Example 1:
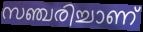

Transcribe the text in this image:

സഞ്ചരിച്ചാണ്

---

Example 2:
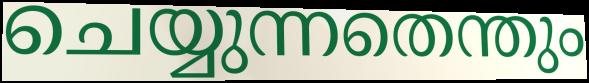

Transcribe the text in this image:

ചെയ്യുന്നതെന്തും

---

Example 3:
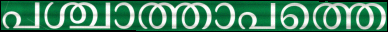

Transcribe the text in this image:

പശ്ചാത്താപത്തെ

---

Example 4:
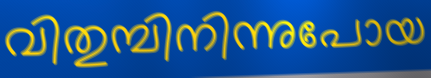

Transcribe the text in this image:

വിതുമ്പിനിന്നുപോയ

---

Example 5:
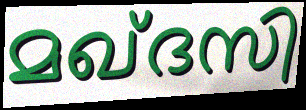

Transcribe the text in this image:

മഖ്ദസി